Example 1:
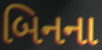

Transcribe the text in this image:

બિનના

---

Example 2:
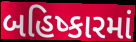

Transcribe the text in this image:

બહિષ્કારમાં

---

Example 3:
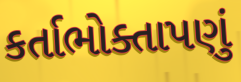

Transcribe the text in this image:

કર્તાભોક્તાપણું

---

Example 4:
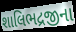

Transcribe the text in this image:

શાલિભદ્રજીના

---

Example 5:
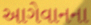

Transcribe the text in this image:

આગેવાનના